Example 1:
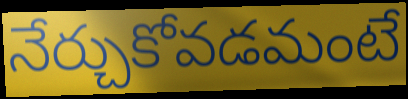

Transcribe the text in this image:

నేర్చుకోవడమంటే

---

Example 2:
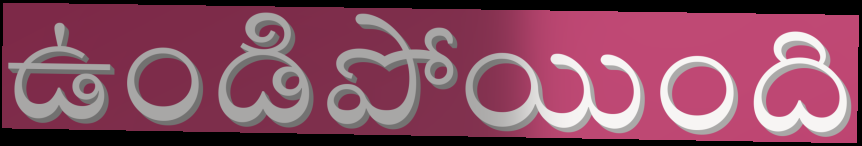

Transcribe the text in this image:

ఉండిపోయింది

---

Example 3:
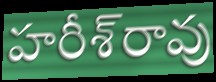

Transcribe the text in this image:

హరీశ్‌రావు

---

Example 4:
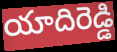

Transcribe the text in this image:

యాదిరెడ్డి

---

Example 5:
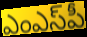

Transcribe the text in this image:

ఎంఎస్‌పీ